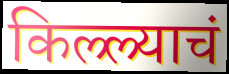
किल्ल्याचं